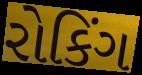
રોકિંગ